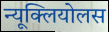
न्यूक्लियोलस